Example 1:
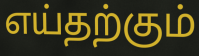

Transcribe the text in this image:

எய்தற்கும்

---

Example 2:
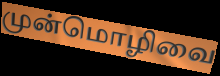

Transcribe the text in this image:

முன்மொழிவை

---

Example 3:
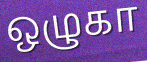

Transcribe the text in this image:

ஒழுகா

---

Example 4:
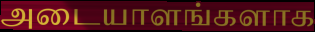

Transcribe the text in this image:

அடையாளங்களாக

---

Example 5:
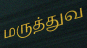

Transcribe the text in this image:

மருத்துவ